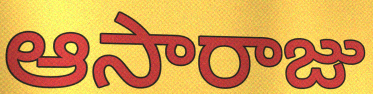
ఆసారాజు